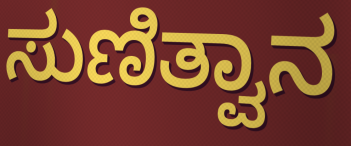
ಸುಣಿತ್ವಾನ